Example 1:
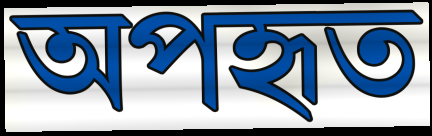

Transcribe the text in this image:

অপহৃত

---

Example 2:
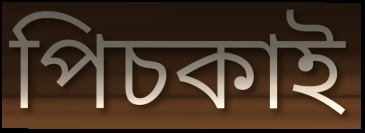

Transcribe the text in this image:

পিচকাই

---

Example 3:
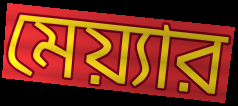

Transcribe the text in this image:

মেয়্যার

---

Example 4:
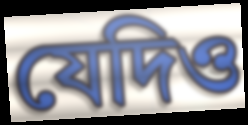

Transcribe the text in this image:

যেদিও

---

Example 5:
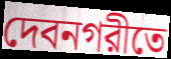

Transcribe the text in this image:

দেবনগরীতে